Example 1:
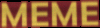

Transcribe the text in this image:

MEME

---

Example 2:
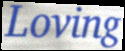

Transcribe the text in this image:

Loving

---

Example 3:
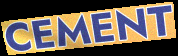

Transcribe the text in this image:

CEMENT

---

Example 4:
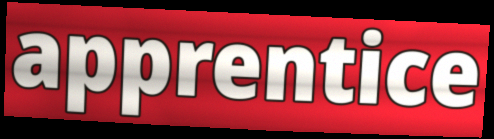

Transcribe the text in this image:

apprentice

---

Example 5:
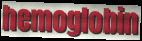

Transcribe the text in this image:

hemoglobin